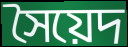
সৈয়েদ